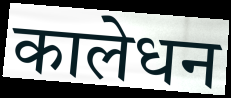
कालेधन